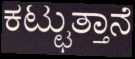
ಕಟ್ಟುತ್ತಾನೆ